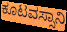
ಕೂಟವಸ್ಸಾನಿ